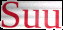
Suu